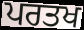
ਪਰਤਖ